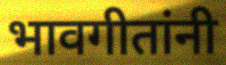
भावगीतांनी